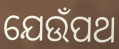
ଯେଉଁପଥ